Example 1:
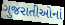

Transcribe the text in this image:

ગુજરાતીઓનાં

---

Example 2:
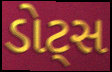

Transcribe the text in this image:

ડોટ્સ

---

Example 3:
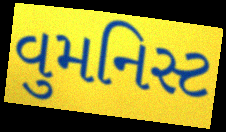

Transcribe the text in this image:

વુમનિસ્ટ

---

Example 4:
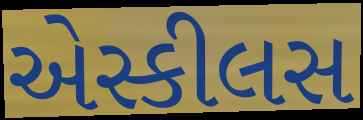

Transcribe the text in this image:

એસ્કીલસ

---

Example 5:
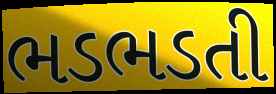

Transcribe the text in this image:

ભડભડતી